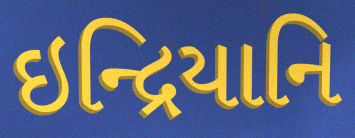
ઇન્દ્રિયાનિ